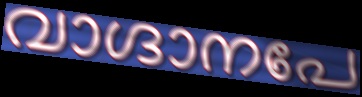
വാഗ്ദാനപേ